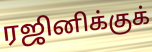
ரஜினிக்குக்